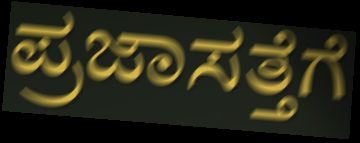
ಪ್ರಜಾಸತ್ತೆಗೆ